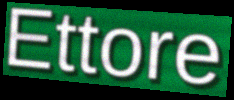
Ettore